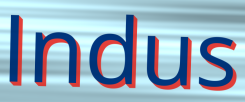
Indus